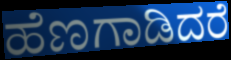
ಹೆಣಗಾಡಿದರೆ